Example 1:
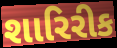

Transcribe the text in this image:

શારિરીક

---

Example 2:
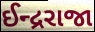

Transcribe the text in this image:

ઈન્દ્રરાજા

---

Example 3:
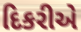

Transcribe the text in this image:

દિકરીએ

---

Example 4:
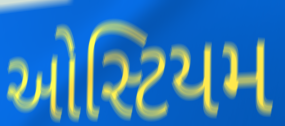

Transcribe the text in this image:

ઓસ્ટિયમ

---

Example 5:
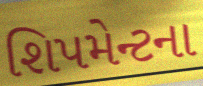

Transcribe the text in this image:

શિપમેન્ટના